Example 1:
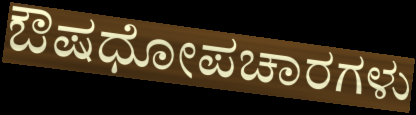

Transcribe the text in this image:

ಔಷಧೋಪಚಾರಗಳು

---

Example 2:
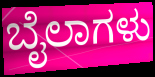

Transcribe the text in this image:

ಬೈಲಾಗಳು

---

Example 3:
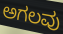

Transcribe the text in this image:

ಅಗಲವು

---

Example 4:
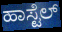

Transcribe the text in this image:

ಹಾಸ್ಟೆಲ್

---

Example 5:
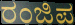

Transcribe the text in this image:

ರಂಜಿಪ